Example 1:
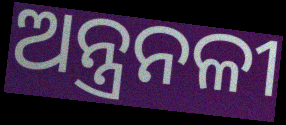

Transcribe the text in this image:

ଅନ୍ତ୍ରନଳୀ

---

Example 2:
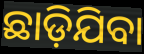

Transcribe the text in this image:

ଛାଡ଼ିଯିବା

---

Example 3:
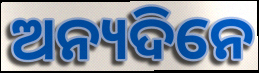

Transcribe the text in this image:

ଅନ୍ୟଦିନେ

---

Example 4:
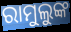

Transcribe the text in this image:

ରାମୁଲୁଙ୍କ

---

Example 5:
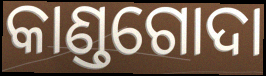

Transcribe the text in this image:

କାଣ୍ଡଗୋଦା